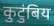
कुटुंबिय